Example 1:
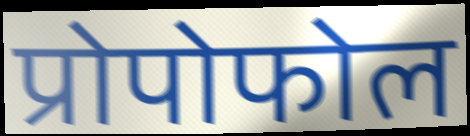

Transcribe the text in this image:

प्रोपोफोल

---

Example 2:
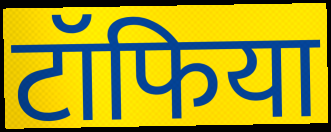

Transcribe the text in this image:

टॉफिया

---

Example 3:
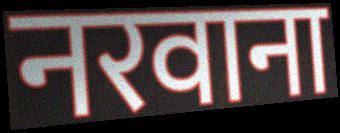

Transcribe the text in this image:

नरवाना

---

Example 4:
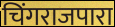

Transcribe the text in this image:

चिंगराजपारा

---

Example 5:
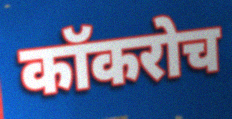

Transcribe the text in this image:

कॉकरोच